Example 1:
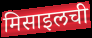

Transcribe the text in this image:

मिसाइलची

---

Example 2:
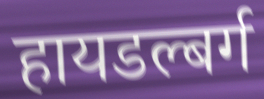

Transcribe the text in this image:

हायडल्बर्ग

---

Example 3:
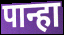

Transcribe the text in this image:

पान्हा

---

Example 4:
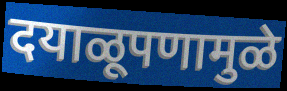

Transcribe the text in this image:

दयाळूपणामुळे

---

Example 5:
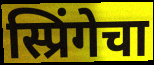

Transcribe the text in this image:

स्प्रिंगेचा